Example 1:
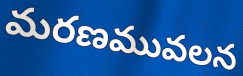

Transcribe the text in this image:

మరణమువలన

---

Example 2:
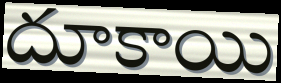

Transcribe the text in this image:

దూకాయి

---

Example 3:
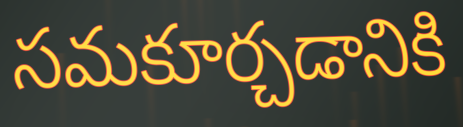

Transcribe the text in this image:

సమకూర్చడానికి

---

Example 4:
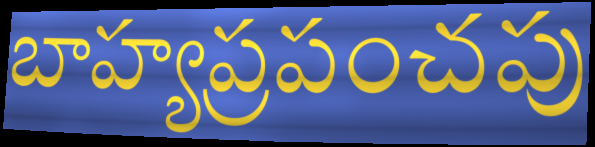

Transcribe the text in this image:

బాహ్యప్రపంచపు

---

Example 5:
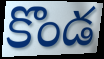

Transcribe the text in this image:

కొండ